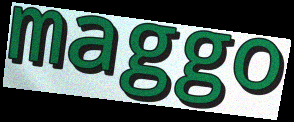
maggo